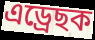
এড্ৰেছক